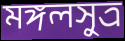
মঙ্গলসুত্র